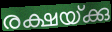
രക്ഷയ്‌ക്കു